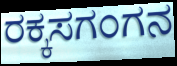
ರಕ್ಕಸಗಂಗನ